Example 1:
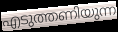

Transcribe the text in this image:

എടുത്തണിയുന്ന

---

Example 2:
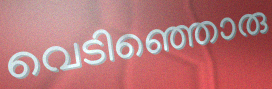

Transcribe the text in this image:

വെടിഞ്ഞൊരു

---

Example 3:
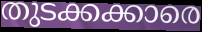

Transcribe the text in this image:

തുടക്കക്കാരെ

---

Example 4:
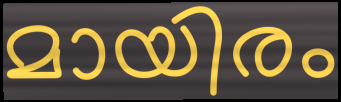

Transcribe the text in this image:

മായിരം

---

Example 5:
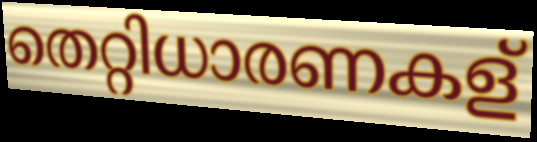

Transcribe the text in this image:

തെറ്റിധാരണകള്